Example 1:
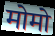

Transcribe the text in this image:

मोमो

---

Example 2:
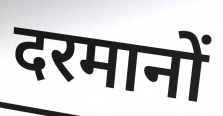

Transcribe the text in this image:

दरमानों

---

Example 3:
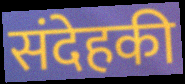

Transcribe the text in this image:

संदेहकी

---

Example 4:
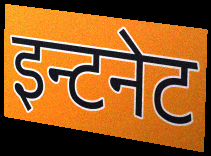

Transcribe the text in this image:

इन्टनेट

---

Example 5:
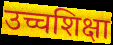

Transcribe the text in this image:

उच्चशिक्षा